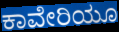
ಕಾವೇರಿಯೂ